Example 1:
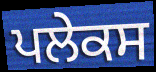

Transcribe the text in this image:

ਪਲੇਕਸ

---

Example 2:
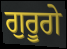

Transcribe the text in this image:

ਗੁਰੂਗੇ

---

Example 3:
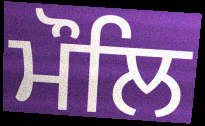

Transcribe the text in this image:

ਮੌਲਿ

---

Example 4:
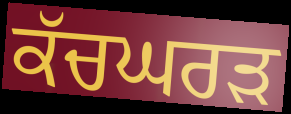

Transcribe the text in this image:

ਕੱਚਘਰੜ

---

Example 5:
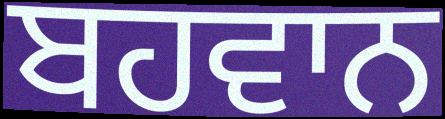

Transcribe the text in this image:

ਬਹਵਾਨ